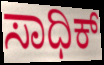
ಸಾಧಿಕ್